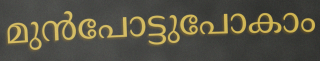
മുൻപോട്ടുപോകാം